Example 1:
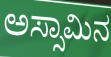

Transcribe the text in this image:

ಅಸ್ಸಾಮಿನ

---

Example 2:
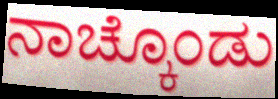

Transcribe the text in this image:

ನಾಚ್ಕೊಂಡು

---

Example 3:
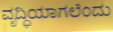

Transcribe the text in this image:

ವೃದ್ಧಿಯಾಗಲೆಂದು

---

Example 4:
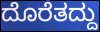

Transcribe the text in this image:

ದೊರೆತದ್ದು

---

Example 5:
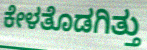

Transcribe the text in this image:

ಕೇಳತೊಡಗಿತ್ತು